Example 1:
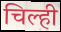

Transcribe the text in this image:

चिल्ही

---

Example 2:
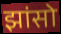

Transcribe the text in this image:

झांसो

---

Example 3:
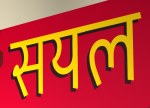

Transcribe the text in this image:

सयल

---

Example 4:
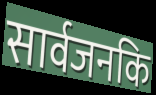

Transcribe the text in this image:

सार्वजनकि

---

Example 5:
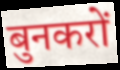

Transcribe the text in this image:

बुनकरों